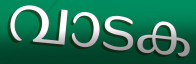
വാടക